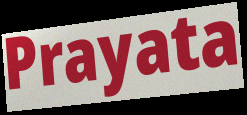
Prayata